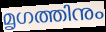
മൃഗത്തിനും